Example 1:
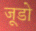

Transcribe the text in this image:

जूडो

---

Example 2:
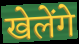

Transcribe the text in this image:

खेलेंगे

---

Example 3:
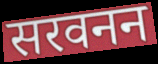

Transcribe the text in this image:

सरवनन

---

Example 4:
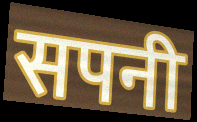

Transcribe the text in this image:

सपनी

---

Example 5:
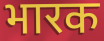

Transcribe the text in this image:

भारक